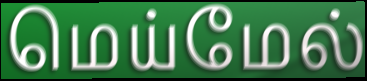
மெய்மேல்